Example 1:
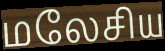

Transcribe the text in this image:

மலேசிய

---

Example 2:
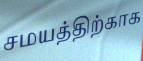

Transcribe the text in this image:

சமயத்திற்காக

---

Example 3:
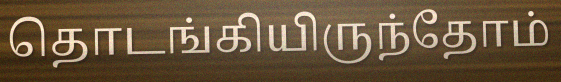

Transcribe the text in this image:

தொடங்கியிருந்தோம்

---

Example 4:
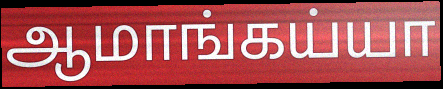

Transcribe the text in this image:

ஆமாங்கய்யா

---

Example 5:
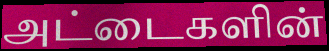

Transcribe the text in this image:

அட்டைகளின்